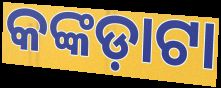
କଙ୍କଡ଼ାଟା